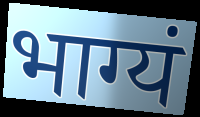
भाग्यं